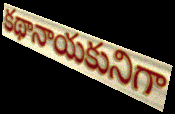
కథానాయకునిగా